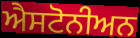
ਐਸਟੋਨੀਅਨ